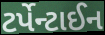
ટર્પેન્ટાઈન